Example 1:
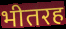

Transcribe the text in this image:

भीतरह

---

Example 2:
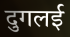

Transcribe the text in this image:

दुगलई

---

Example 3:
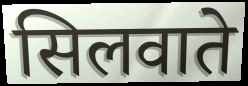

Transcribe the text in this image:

सिलवाते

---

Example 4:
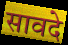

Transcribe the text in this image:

सावदे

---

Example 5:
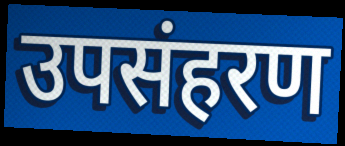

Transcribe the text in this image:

उपसंहरण